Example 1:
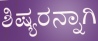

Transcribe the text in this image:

ಶಿಷ್ಯರನ್ನಾಗಿ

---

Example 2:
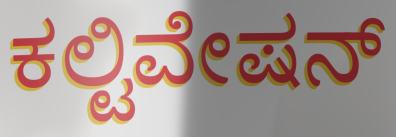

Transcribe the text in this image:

ಕಲ್ಟಿವೇಷನ್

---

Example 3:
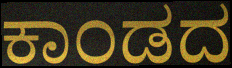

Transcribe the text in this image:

ಕಾಂಡದ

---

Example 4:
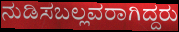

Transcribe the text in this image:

ನುಡಿಸಬಲ್ಲವರಾಗಿದ್ದರು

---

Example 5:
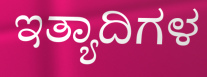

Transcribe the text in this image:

ಇತ್ಯಾದಿಗಳ